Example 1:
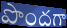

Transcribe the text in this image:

పొందగా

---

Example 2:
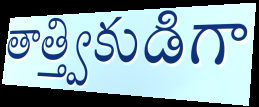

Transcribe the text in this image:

తాత్త్వికుడిగా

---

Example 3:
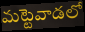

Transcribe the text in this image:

మట్టెవాడలో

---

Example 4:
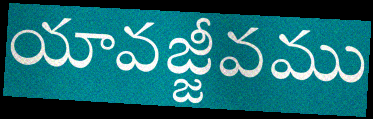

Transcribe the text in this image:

యావజ్జీవము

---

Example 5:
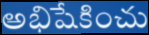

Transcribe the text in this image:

అభిషేకించు